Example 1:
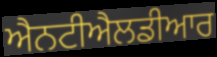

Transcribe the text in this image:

ਐਨਟੀਐਲਡੀਆਰ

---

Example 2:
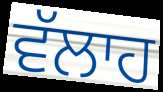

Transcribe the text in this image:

ਵੱਲਾਹ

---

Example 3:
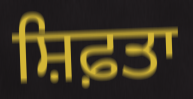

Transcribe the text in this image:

ਸ਼ਿਫ਼ਤਾ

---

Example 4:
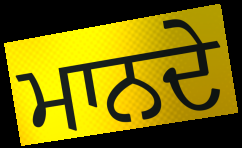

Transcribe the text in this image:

ਮਾਨਦੇ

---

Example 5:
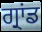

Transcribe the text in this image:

ਗ੍ਰਾਂਡ